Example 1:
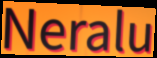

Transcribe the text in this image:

Neralu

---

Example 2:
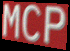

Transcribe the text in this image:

MCP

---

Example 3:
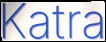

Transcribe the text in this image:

Katra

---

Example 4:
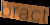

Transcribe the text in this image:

bract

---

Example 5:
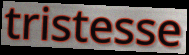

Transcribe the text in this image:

tristesse